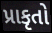
પ્રાકૃતો